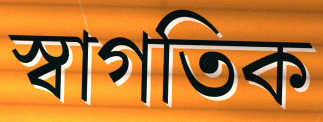
স্বাগতিক